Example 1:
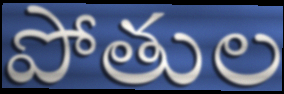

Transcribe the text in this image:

పోతుల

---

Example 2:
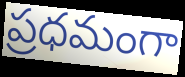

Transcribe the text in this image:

ప్రధమంగా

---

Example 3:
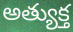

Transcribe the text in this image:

అత్యుక్త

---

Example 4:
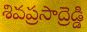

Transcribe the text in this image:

శివప్రసాద్రెడ్డి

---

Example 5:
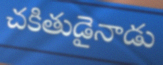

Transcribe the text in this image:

చకితుడైనాడు